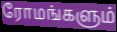
ரோமங்களும்